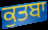
ਕੁਤਬਾ